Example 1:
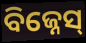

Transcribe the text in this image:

ବିଜ୍ନେସ୍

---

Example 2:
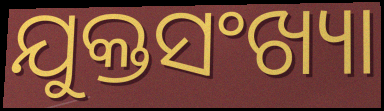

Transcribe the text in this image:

ଯୁକ୍ତସଂଖ୍ୟା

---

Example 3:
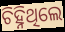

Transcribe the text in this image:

ଚିହ୍ନିଥିଲେ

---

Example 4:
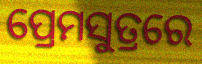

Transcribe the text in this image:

ପ୍ରେମସୁତ୍ରରେ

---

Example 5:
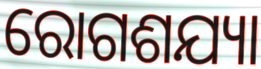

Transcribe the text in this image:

ରୋଗଶଯ୍ୟା